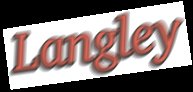
Langley